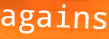
agains